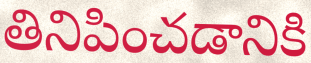
తినిపించడానికి